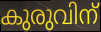
കുരുവിന്